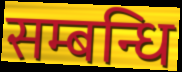
सम्बन्धि